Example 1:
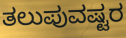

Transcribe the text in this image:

ತಲುಪುವಷ್ಟರ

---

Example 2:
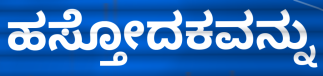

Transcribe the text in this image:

ಹಸ್ತೋದಕವನ್ನು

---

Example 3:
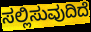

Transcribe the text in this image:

ಸಲ್ಲಿಸುವುದಿದೆ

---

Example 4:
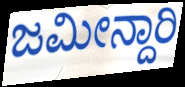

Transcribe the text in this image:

ಜಮೀನ್ದಾರಿ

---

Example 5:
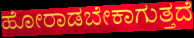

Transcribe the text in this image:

ಹೋರಾಡಬೇಕಾಗುತ್ತದೆ